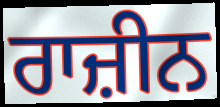
ਰਾਜ਼ੀਨ